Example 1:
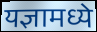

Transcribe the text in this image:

यज्ञामध्ये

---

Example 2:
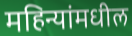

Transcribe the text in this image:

महिन्यांमधील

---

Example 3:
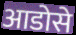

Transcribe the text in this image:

आडोसे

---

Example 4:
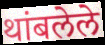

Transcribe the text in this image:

थांबलेले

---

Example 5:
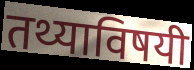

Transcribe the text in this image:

तथ्याविषयी